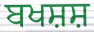
ਬਖਸ਼ਸ਼